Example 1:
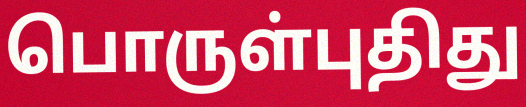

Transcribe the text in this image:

பொருள்புதிது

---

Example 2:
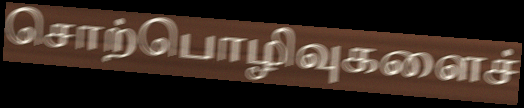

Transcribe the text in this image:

சொற்பொழிவுகளைச்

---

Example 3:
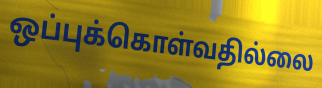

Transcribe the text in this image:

ஒப்புக்கொள்வதில்லை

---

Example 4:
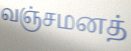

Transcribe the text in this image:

வஞ்சமனத்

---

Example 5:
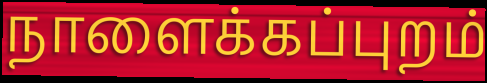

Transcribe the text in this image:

நாளைக்கப்புறம்